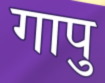
गापु